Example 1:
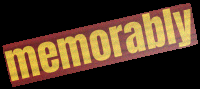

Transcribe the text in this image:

memorably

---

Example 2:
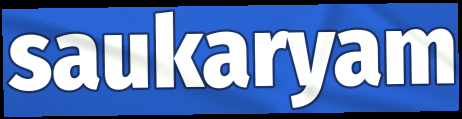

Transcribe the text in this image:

saukaryam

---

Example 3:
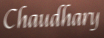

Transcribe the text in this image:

Chaudhary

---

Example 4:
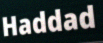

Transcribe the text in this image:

Haddad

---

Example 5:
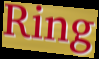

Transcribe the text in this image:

Ring